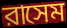
রাসেম